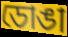
ডোঙা